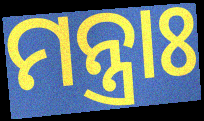
ମନ୍ତ୍ରାଃ